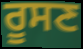
ਰੂਸਣ